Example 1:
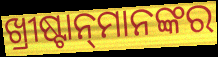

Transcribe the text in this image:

ଖ୍ରୀଷ୍ଟାନ୍‌ମାନଙ୍କର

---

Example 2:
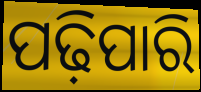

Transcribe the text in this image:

ପଢ଼ିପାରି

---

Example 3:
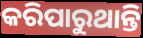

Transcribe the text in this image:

କରିପାରୁଥାନ୍ତି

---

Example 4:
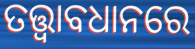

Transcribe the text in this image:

ତତ୍ତ୍ୱାବଧାନରେ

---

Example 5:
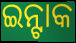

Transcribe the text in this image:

ଇନ୍ଟାକ